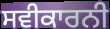
ਸਵੀਕਾਰਨੀ